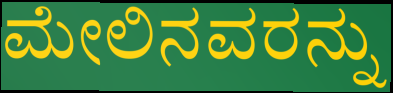
ಮೇಲಿನವರನ್ನು